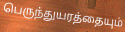
பெருந்துயரத்தையும்